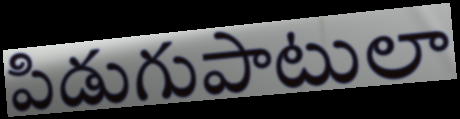
పిడుగుపాటులా